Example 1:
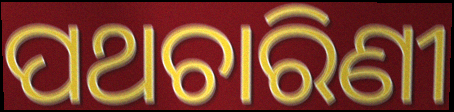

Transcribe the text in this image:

ପଥଚାରିଣୀ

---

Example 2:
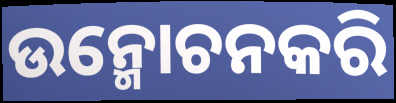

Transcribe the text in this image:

ଉନ୍ମୋଚନକରି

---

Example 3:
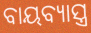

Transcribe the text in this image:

ବାୟବ୍ୟାସ୍ତ୍ର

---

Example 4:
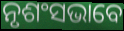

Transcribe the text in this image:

ନୃଶଂସଭାବେ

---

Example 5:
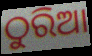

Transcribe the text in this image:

ଠୁରିଆ